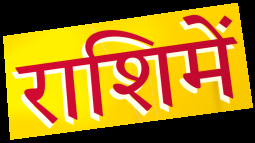
राशिमें